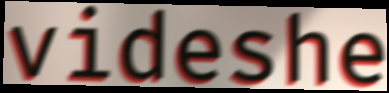
videshe